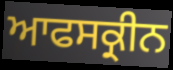
ਆਫਸਕ੍ਰੀਨ